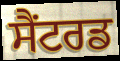
ਸੈਂਟਰਡ